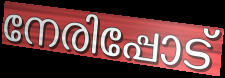
നേരിപ്പോട്